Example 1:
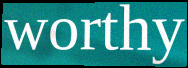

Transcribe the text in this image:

worthy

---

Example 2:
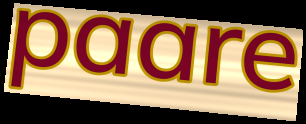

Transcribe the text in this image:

paare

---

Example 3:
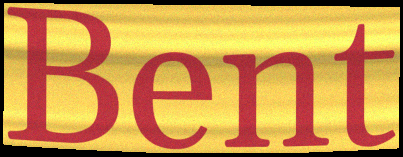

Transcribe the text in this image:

Bent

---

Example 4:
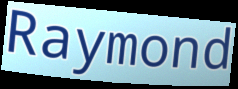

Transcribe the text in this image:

Raymond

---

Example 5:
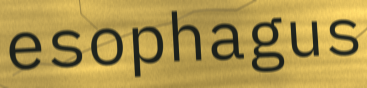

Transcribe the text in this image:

esophagus